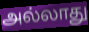
அல்லாது